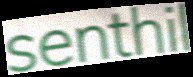
senthil